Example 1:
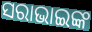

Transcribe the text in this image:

ସରାଭାଇଙ୍କ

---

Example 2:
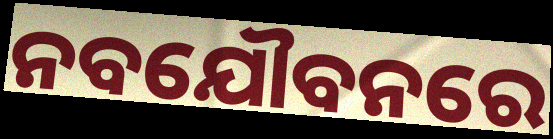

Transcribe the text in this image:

ନବଯୌବନରେ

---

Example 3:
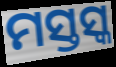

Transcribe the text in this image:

ମସ୍ତସ୍କ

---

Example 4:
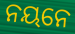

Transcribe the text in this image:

ନୟନେ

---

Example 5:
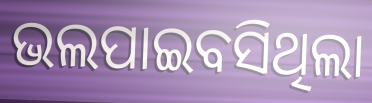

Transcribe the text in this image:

ଭଲପାଇବସିଥିଲା